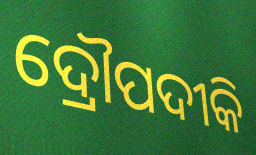
ଦ୍ରୌପଦୀକି